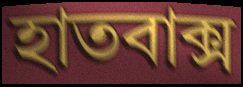
হাতবাক্স